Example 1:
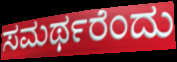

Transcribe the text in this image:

ಸಮರ್ಥರೆಂದು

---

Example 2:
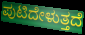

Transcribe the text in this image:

ಪುಟಿದೇಳುತ್ತದೆ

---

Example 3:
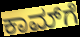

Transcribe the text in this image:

ಕಾಮ್‌ಗೆ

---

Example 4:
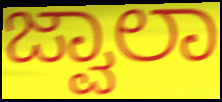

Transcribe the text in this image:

ಜ್ವಾಲಾ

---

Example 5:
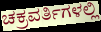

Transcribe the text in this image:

ಚಕ್ರವರ್ತಿಗಳಲ್ಲಿ